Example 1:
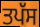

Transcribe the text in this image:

ਤਪੱਸ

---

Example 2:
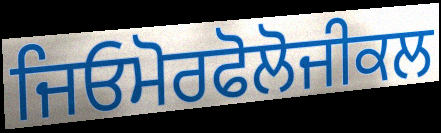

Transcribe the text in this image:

ਜਿਓਮੋਰਫੋਲੋਜੀਕਲ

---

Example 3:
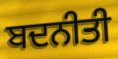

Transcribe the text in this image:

ਬਦਨੀਤੀ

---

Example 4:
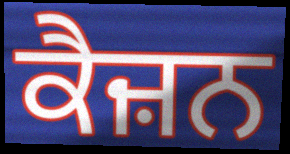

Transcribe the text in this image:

ਕੈਜ਼ਨ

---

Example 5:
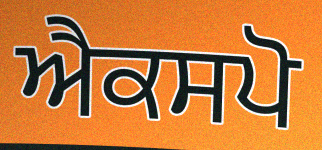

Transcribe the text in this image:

ਐਕਸਪੋ